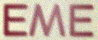
EME